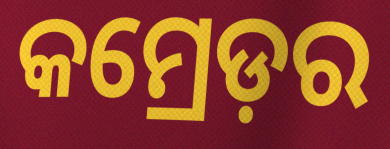
କମ୍ରେଡ଼ର